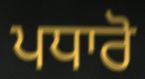
ਪਧਾਰੋ